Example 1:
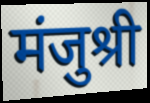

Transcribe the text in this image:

मंजुश्री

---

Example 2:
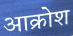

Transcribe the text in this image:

आक्रोश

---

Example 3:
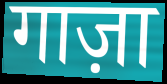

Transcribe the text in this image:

गाज़ा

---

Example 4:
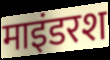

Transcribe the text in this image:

माइंडरश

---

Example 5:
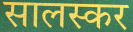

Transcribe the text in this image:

सालस्कर